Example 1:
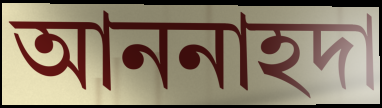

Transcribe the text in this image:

আননাহদা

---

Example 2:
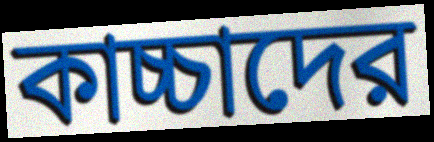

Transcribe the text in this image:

কাচ্চাদের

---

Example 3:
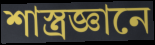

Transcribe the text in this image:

শাস্ত্রজ্ঞানে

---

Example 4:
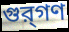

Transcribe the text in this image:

গুর্‌গণ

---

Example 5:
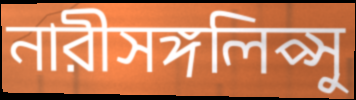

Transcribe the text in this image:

নারীসঙ্গলিপ্সু